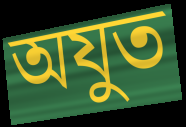
অযুত